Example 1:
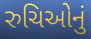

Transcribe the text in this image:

રુચિઓનું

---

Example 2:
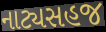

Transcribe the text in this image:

નાટ્યસહજ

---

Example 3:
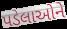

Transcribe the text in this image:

પડેલાઓને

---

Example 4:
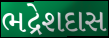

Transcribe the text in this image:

ભદ્રેશદાસ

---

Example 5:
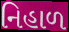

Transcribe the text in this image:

નિહાળ